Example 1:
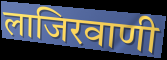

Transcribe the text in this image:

लाजिरवाणी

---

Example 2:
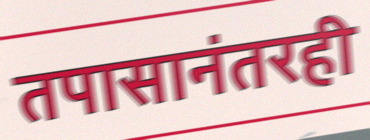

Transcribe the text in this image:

तपासानंतरही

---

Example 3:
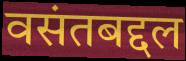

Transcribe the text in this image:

वसंतबद्दल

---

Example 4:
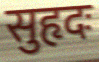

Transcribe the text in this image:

सुहृदः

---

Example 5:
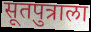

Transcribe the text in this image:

सूतपुत्राला